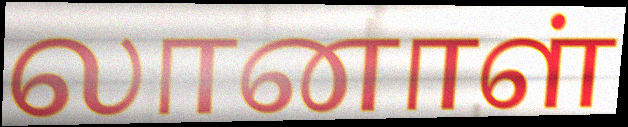
லானாள்